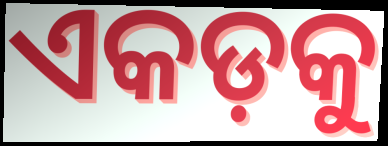
ଏକଡ଼କୁ